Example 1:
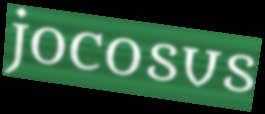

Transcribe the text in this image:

jocosus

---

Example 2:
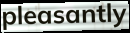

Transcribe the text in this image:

pleasantly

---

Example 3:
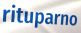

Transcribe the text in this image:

rituparno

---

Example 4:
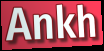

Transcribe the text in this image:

Ankh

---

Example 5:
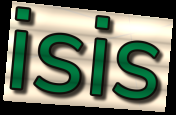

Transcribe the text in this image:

isis